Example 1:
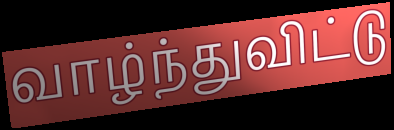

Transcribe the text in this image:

வாழ்ந்துவிட்டு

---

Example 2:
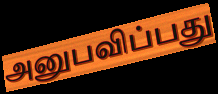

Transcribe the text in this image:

அனுபவிப்பது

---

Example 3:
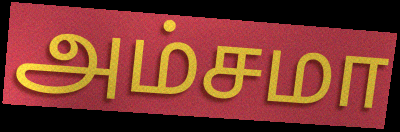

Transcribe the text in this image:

அம்சமா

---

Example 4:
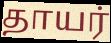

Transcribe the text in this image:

தாயர்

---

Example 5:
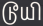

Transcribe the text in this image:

டூயி